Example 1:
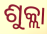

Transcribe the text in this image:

ଶୁକ୍ଲା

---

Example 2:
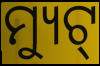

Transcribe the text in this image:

ମ୍ୟୁଟ୍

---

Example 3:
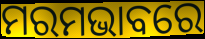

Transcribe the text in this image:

ମରମଭାବରେ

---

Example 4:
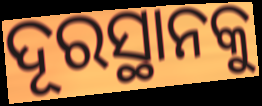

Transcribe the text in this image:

ଦୂରସ୍ଥାନକୁ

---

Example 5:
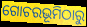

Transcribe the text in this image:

ଗୋଚରଭୂମିଠାରୁ